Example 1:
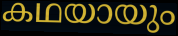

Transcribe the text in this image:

കഥയായും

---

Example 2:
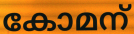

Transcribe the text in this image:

കോമന്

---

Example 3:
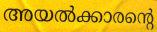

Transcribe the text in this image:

അയൽക്കാരന്റെ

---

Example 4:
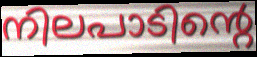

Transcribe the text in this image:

നിലപാടിന്റെ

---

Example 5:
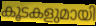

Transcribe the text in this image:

കൂടകളുമായി